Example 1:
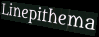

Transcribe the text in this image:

Linepithema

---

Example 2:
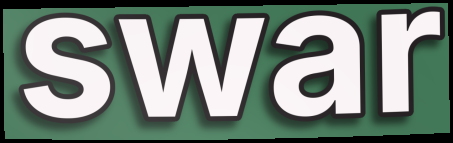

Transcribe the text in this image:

swar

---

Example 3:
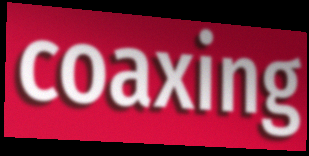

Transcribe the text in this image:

coaxing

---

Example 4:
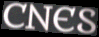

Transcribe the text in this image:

CNES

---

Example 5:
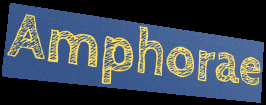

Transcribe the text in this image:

Amphorae